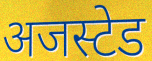
अजस्टेड